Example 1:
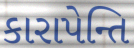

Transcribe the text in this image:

કારાપેન્તિ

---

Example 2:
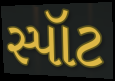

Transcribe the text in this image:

સ્પૉટ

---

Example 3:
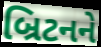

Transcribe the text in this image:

બ્રિટનને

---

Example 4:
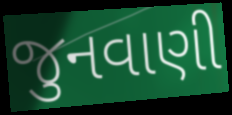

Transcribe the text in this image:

જુનવાણી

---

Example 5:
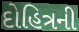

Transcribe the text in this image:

દોહિત્રની